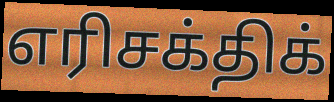
எரிசக்திக்